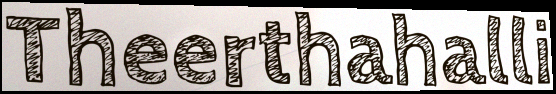
Theerthahalli